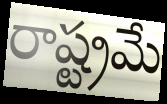
రాష్ట్రమే